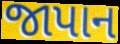
જાપાન